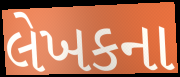
લેખકના